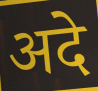
अदे